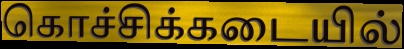
கொச்சிக்கடையில்